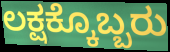
ಲಕ್ಷಕ್ಕೊಬ್ಬರು